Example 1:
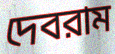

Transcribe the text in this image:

দেবরাম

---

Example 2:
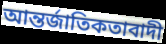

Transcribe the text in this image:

আন্তর্জাতিকতাবাদী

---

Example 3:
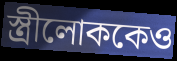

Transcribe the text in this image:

স্ত্রীলোককেও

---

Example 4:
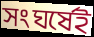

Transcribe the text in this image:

সংঘর্ষেই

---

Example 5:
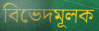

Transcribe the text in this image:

বিভেদমূলক